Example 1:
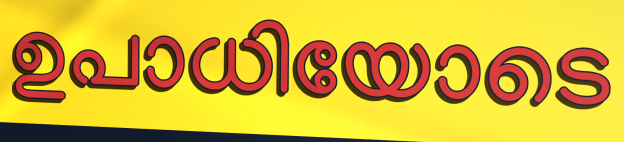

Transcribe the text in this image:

ഉപാധിയോടെ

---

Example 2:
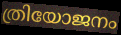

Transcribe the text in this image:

ത്രിയോജനം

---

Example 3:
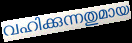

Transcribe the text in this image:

വഹിക്കുന്നതുമായ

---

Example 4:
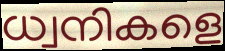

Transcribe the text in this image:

ധ്വനികളെ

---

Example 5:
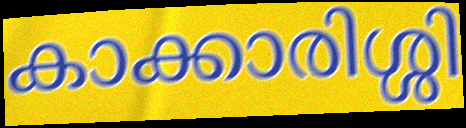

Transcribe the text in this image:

കാക്കാരിശ്ശി